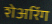
शेअरिंग